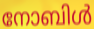
നോബിൾ